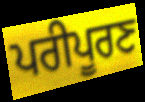
ਪਰੀਪੂਰਣ